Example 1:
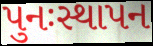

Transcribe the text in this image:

પુનઃસ્થાપન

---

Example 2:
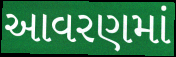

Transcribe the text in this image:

આવરણમાં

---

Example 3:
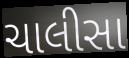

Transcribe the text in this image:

ચાલીસા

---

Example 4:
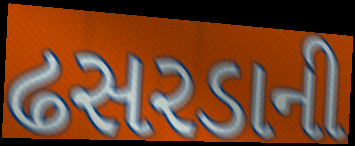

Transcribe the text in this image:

ઢસરડાની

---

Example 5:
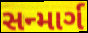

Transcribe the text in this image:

સન્માર્ગ